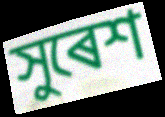
সুৰেশ